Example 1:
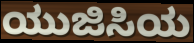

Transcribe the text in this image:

ಯುಜಿಸಿಯ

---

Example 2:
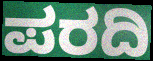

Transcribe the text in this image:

ಪರದಿ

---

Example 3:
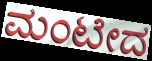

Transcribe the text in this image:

ಮಂಟೇದ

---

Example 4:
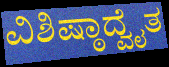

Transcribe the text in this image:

ವಿಶಿಷ್ಠಾದ್ವೈತ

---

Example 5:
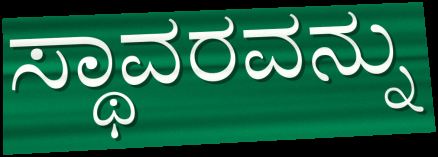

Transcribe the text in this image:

ಸ್ಥಾವರವನ್ನು